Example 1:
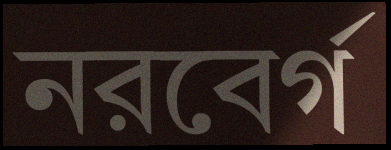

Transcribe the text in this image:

নরবের্গ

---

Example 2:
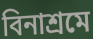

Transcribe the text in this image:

বিনাশ্রমে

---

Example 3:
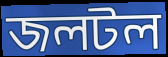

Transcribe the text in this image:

জলটল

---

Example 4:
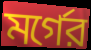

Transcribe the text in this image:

মর্গের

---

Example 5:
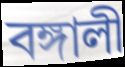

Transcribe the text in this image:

বঙ্গালী